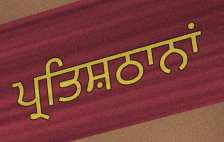
ਪ੍ਰਤਿਸ਼ਠਾਨਾਂ